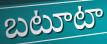
బటూటా